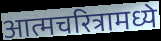
आत्मचरित्रामध्ये